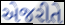
એજરીતે